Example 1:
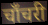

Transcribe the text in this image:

चाँचरी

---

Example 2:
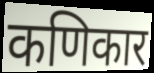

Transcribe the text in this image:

कणिकार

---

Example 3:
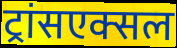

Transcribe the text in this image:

ट्रांसएक्सल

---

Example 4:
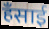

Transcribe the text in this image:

हँसाई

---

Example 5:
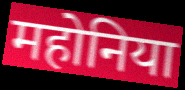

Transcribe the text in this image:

महोनिया